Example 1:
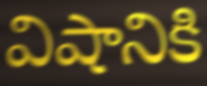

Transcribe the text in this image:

విషానికి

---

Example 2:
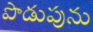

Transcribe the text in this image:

పొడుపును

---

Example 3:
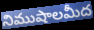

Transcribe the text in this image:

నిముషాలమీద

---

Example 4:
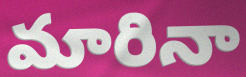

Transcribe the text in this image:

మారినా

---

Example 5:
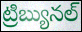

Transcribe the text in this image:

ట్రిబ్యునల్